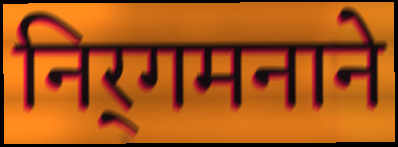
निर्गमनाने